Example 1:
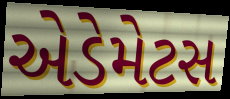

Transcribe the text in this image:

એડેમેટસ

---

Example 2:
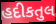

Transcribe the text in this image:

હદીકતુલ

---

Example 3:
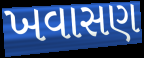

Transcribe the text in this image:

ખવાસણ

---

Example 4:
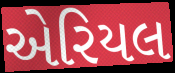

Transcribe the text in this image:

એરિયલ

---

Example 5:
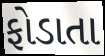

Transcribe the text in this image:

ફોડાતા